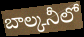
బాల్కనీలో